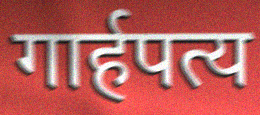
गार्हपत्य